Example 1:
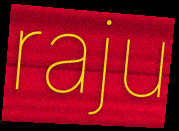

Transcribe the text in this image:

raju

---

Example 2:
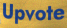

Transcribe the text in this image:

Upvote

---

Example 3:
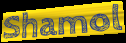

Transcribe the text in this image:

Shamol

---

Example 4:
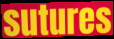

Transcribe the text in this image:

sutures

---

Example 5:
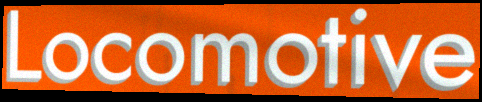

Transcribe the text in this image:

Locomotive